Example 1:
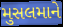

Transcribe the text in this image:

મુસલમાને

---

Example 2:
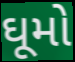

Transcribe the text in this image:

ઘૂમો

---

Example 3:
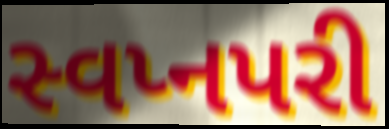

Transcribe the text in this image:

સ્વપ્નપરી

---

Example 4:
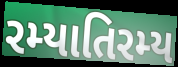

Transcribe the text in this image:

રમ્યાતિરમ્ય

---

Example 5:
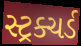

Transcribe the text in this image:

સ્ટ્રક્ચર્ડ